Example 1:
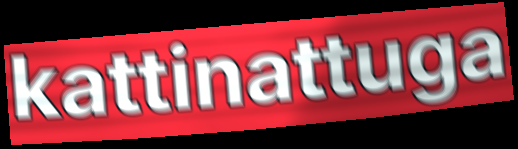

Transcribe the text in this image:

kattinattuga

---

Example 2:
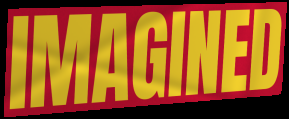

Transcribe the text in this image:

IMAGINED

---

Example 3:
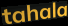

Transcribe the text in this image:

tahala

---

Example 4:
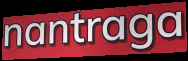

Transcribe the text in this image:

nantraga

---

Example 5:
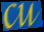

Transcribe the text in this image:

cu